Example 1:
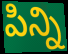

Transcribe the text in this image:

పిన్ని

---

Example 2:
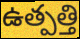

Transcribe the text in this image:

ఉత్పత్తి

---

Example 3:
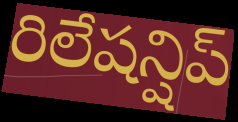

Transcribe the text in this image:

రిలేషన్షిప్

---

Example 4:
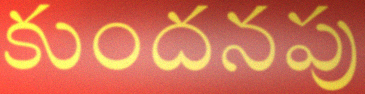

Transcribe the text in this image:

కుందనపు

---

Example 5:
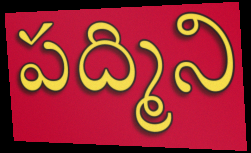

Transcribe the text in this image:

పద్మిని